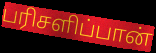
பரிசளிப்பான்